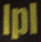
Ipl